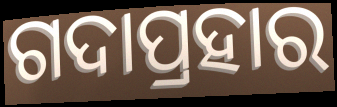
ଗଦାପ୍ରହାର